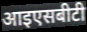
आइएसबीटी